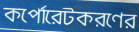
কর্পোরেটকরণের